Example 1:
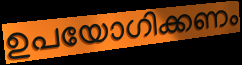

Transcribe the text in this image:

ഉപയോഗിക്കണം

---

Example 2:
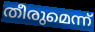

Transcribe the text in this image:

തീരുമെന്ന്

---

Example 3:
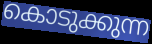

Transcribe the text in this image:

കൊടുക്കുന്ന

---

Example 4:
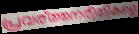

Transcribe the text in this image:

പ്രവര്ത്തനരീതികളെ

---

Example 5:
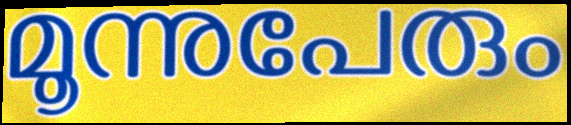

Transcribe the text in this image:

മൂന്നുപേരും